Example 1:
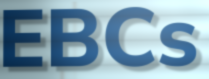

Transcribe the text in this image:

EBCs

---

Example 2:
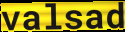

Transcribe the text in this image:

valsad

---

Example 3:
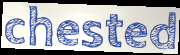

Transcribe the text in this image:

chested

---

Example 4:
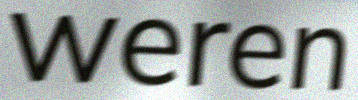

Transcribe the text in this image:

weren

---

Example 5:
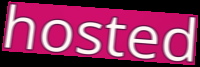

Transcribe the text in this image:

hosted